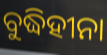
ବୁଦ୍ଧିହୀନା